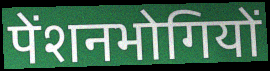
पेंशनभोगियों